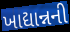
ખાદ્યાન્નની